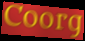
Coorg